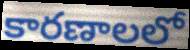
కారణాలలో